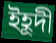
ইহূদী